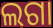
ଲଗା